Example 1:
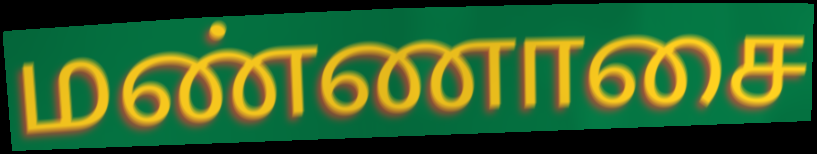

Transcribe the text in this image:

மண்ணாசை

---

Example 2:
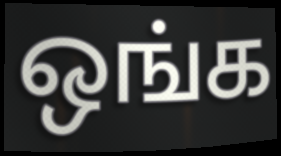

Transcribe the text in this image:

ஒங்க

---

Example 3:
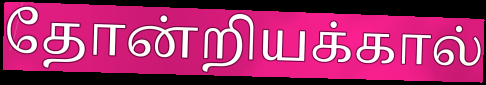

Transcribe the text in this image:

தோன்றியக்கால்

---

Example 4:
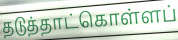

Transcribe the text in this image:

தடுத்தாட்கொள்ளப்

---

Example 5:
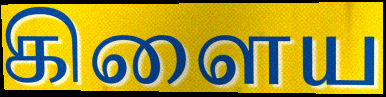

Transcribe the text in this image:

கிளைய